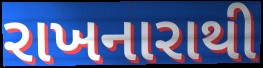
રાખનારાથી